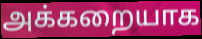
அக்கறையாக